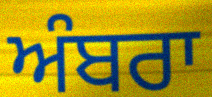
ਅੰਬਰਾ